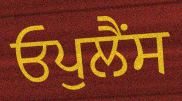
ਓਪੁਲੈਂਸ